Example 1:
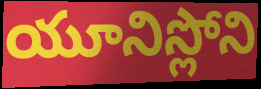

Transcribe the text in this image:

యూనిస్లోని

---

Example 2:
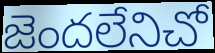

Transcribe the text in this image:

జెందలేనిచో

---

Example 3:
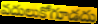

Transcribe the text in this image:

వదులుకోగూడదు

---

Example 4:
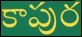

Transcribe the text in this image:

కాపుర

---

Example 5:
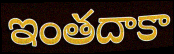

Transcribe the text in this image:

ఇంతదాకా